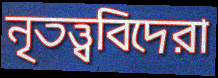
নৃতত্ত্ববিদেরা